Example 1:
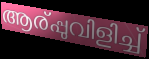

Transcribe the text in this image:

ആര്പ്പുവിളിച്ച്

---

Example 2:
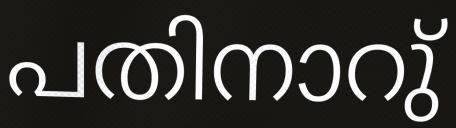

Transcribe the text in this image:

പതിനാറു്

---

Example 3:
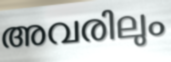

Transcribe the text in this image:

അവരിലും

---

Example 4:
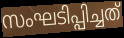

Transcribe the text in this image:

സംഘടിപ്പിച്ചത്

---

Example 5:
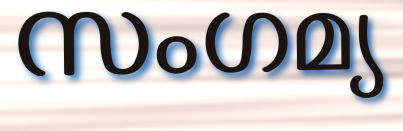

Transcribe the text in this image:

സംഗമ്യ